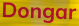
Dongar